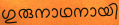
ഗുരുനാഥനായി